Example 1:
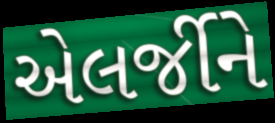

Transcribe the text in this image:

એલર્જીને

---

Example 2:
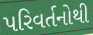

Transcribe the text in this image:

પરિવર્તનોથી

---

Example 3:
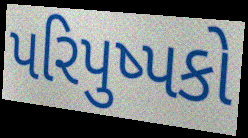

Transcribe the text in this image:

પરિપુષ્પકો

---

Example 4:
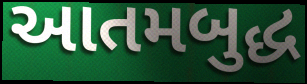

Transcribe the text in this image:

આતમબુદ્ધ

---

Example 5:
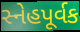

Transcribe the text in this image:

સ્નેહપૂર્વક